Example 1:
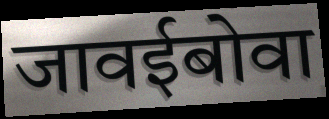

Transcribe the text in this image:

जावईबोवा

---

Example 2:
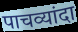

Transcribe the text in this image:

पाचव्यांदा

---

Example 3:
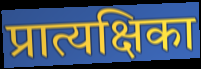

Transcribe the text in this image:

प्रात्यक्षिका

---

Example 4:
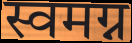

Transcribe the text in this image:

स्वमग्न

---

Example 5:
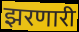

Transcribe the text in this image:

झरणारी